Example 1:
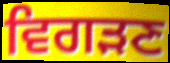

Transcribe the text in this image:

ਵਿਗੜਣ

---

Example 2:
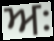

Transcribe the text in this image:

ਅਃ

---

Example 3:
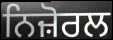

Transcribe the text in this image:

ਨਿਜ਼ੋਰਲ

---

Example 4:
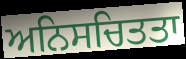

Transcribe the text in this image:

ਅਨਿਸਚਿਤਤਾ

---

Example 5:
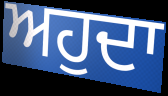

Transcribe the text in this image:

ਅਹੁਦਾ